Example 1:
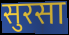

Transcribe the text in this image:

सुरसा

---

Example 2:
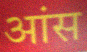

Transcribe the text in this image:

आंस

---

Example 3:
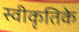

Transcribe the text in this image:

स्वीकृतिके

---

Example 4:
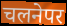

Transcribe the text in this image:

चलनेपर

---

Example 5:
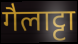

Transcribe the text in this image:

गैलाट्टा